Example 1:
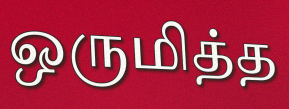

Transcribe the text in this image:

ஒருமித்த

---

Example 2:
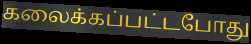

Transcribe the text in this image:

கலைக்கப்பட்டபோது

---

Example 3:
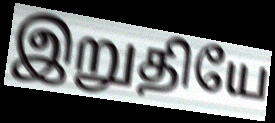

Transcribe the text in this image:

இறுதியே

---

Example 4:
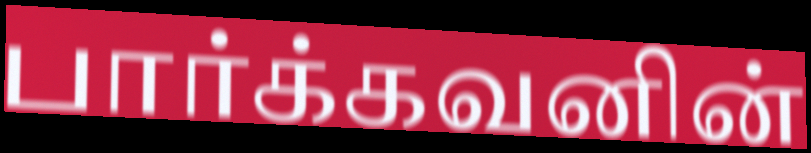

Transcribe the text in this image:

பார்க்கவனின்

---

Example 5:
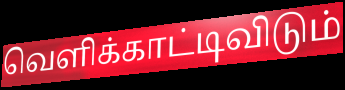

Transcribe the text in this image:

வெளிக்காட்டிவிடும்